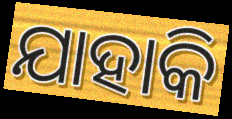
ଯାହାକି